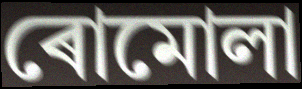
ৰোমোলা